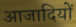
आजादियों